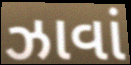
ઝાવાં